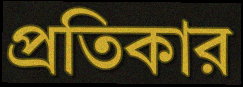
প্রতিকার